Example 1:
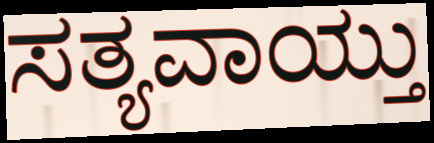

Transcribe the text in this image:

ಸತ್ಯವಾಯ್ತು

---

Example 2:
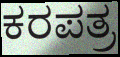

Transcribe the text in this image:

ಕರಪತ್ರ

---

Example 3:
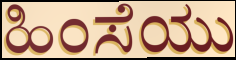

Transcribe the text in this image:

ಹಿಂಸೆಯು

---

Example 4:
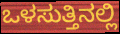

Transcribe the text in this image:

ಒಳಸುತ್ತಿನಲ್ಲಿ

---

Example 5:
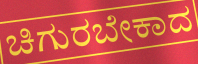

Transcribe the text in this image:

ಚಿಗುರಬೇಕಾದ